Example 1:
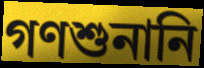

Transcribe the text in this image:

গণশুনানি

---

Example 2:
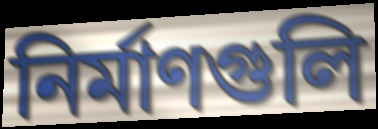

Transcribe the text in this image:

নির্মাণগুলি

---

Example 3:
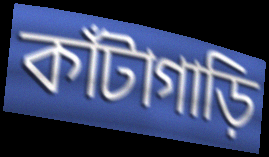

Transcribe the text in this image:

কাঁটাগাড়ি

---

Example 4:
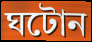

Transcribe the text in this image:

ঘটোন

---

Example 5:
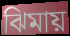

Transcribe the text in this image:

ঝিমায়